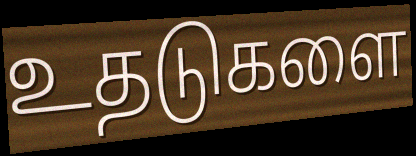
உதடுகளை